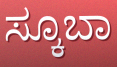
ಸ್ಕೂಬಾ